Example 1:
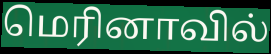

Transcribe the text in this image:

மெரினாவில்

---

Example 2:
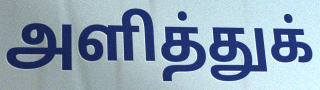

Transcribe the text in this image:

அளித்துக்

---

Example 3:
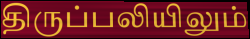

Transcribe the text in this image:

திருப்பலியிலும்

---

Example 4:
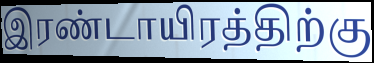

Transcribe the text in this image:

இரண்டாயிரத்திற்கு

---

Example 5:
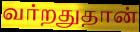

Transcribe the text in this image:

வர்றதுதான்